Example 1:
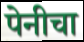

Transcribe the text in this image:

पेनीचा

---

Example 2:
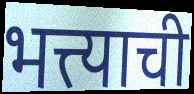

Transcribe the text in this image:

भत्त्याची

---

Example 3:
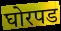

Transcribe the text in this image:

घोरपड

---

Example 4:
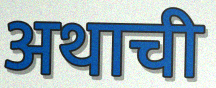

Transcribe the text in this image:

अथाची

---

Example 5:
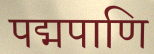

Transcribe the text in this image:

पद्मपाणि